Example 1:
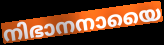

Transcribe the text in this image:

നിഭാനനായൈ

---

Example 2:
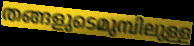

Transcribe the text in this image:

തങ്ങളുടെമുമ്പിലുള്ള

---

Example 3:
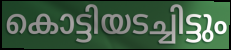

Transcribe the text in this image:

കൊട്ടിയടച്ചിട്ടും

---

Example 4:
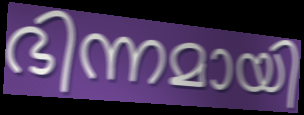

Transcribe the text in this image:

ഭിന്നമായി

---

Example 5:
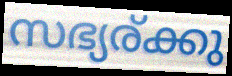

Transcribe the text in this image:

സഭ്യര്ക്കു